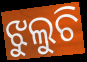
ଝୁଲୁଚି